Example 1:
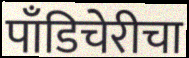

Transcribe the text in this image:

पाँडिचेरीचा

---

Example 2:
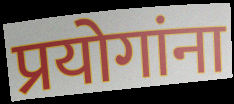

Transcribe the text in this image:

प्रयोगांना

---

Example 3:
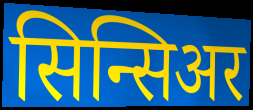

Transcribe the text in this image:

सिन्सिअर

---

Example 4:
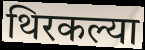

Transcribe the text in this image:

थिरकल्या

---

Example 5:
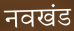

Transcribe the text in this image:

नवखंड